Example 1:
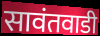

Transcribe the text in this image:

सावंतवाडी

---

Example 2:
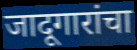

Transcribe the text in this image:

जादूगारांचा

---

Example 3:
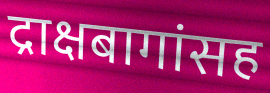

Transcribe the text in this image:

द्राक्षबागांसह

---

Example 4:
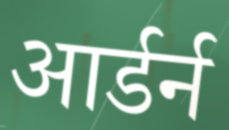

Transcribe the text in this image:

आर्डर्न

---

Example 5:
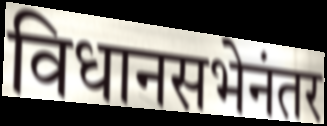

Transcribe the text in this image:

विधानसभेनंतर